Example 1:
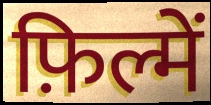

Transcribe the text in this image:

फ़िल्में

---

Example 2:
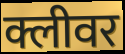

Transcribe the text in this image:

क्लीवर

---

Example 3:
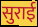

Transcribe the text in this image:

सुराई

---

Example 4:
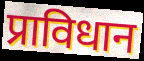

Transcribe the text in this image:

प्राविधान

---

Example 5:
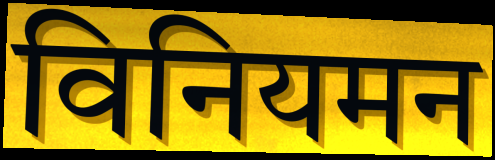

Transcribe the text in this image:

विनियमन